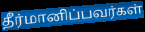
தீர்மானிப்பவர்கள்